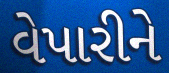
વેપારીને